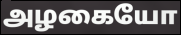
அழகையோ